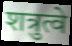
शत्रुत्वे